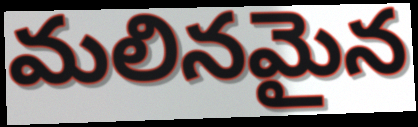
మలినమైన